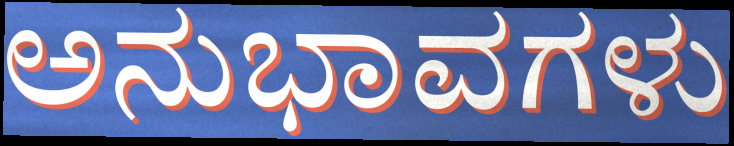
ಅನುಭಾವಗಳು